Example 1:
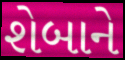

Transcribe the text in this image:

શેબાને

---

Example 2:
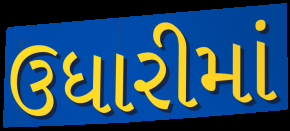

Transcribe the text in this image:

ઉધારીમાં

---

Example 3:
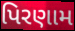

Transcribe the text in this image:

પિરણામ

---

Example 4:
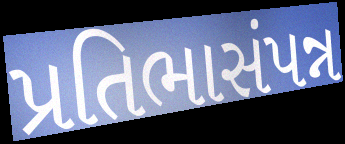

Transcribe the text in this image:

પ્રતિભાસંપન્ન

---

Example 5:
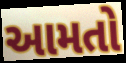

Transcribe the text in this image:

આમતો